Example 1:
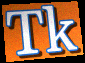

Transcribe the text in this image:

Tk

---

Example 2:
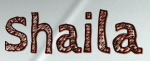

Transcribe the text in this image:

Shaila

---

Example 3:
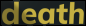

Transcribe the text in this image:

death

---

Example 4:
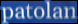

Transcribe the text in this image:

patolan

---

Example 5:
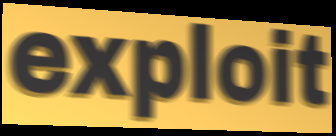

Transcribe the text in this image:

exploit